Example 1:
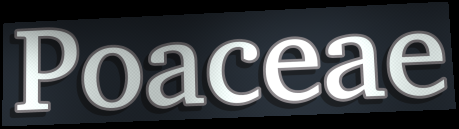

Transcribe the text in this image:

Poaceae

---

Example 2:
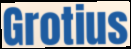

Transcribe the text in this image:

Grotius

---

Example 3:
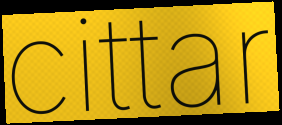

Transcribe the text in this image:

cittar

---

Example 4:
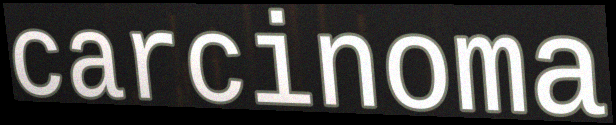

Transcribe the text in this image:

carcinoma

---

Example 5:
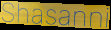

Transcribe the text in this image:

Shasanni